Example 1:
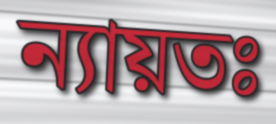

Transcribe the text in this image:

ন্যায়তঃ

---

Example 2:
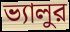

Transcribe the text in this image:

ভ্যালুর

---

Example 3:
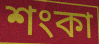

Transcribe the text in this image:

শংকা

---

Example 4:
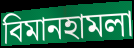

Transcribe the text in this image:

বিমানহামলা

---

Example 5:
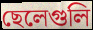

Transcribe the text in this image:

ছেলেগুলি